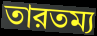
তারতম্য